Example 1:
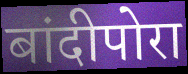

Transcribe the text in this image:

बांदीपोरा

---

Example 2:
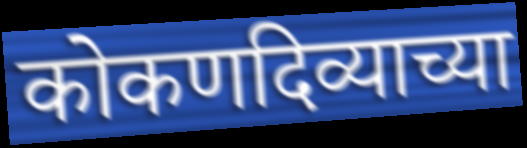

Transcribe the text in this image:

कोकणदिव्याच्या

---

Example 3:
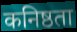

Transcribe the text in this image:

कनिष्ठता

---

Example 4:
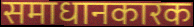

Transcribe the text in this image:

समाधानकारक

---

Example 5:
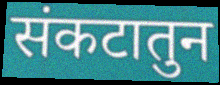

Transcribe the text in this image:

संकटातुन